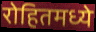
रोहितमध्ये